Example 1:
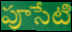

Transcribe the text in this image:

పూసేటి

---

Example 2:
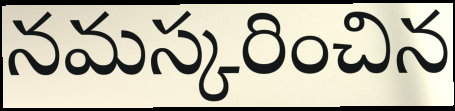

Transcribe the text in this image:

నమస్కరించిన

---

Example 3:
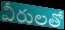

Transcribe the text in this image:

వీరులతో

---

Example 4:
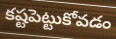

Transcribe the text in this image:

కష్టపెట్టుకోవడం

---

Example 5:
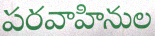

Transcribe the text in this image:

పరవాహినుల